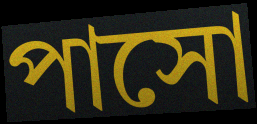
পাসো